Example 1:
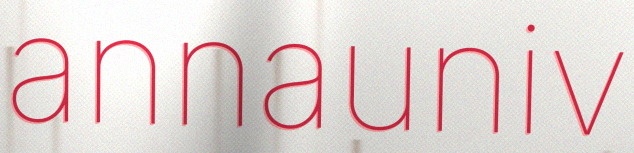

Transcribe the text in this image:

annauniv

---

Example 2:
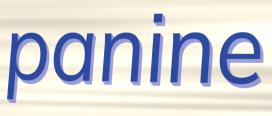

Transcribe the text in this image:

panine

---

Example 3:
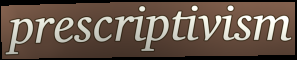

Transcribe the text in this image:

prescriptivism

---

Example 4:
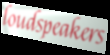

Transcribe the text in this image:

loudspeakers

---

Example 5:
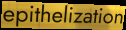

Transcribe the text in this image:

epithelization